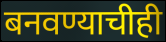
बनवण्याचीही